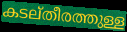
കടല്തീരത്തുള്ള